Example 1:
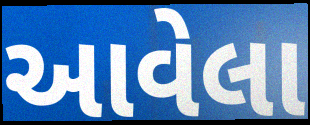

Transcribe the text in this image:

આવેલા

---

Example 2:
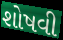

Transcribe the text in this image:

શોષવી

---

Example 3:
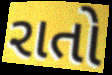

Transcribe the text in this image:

રાતો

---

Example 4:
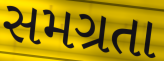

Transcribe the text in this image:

સમગ્રતા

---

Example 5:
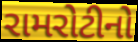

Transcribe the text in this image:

રામરોટીનો